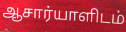
ஆசார்யாளிடம்